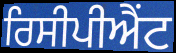
ਰਿਸੀਪੀਐਂਟ